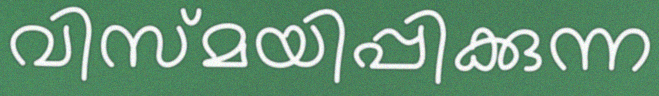
വിസ്മയിപ്പിക്കുന്ന